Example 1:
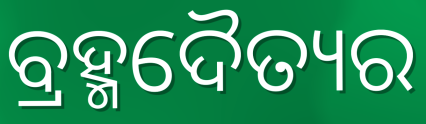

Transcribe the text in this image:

ବ୍ରହ୍ମଦୈତ୍ୟର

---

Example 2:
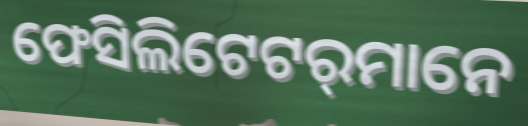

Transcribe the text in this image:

ଫେସିଲିଟେଟର୍‌ମାନେ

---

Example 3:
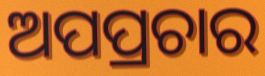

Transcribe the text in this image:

ଅପପ୍ରଚାର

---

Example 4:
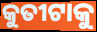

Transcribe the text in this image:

କୁତୀଟାକୁ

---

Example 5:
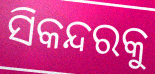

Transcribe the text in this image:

ସିକନ୍ଦରକୁ